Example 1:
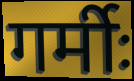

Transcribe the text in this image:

गर्मीः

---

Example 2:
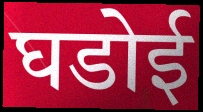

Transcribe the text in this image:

घडोई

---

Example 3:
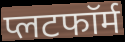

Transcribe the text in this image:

प्लटफॉर्म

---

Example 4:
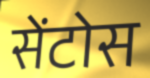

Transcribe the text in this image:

सेंटोस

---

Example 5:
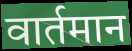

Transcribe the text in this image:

वार्तमान